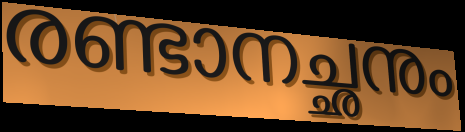
രണ്ടാനച്ഛനും